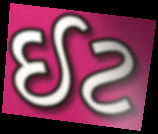
ઈટ